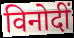
विनोदीं